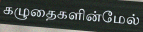
கழுதைகளின்மேல்